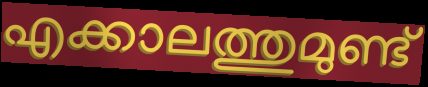
എക്കാലത്തുമുണ്ട്